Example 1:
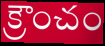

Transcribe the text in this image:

క్రౌంచం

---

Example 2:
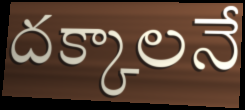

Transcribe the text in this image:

దక్కాలనే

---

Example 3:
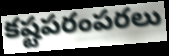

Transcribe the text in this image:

కష్టపరంపరలు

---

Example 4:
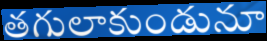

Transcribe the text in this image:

తగులాకుండునూ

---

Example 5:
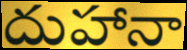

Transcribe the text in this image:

దుహానా